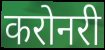
करोनरी